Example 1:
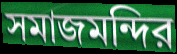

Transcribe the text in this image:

সমাজমন্দির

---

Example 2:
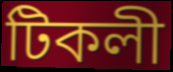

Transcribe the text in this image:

টিকলী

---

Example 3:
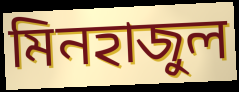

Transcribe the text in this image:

মিনহাজুল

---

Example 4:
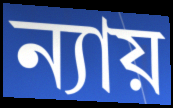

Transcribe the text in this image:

ন্যায়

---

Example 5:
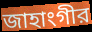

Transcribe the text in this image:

জাহাংগীর